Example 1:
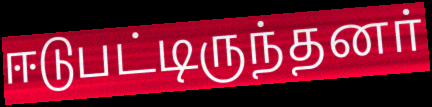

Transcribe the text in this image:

ஈடுபட்டிருந்தனர்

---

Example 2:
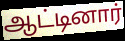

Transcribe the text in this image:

ஆட்டினார்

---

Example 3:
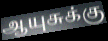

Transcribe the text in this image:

ஆயுசுக்கு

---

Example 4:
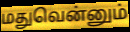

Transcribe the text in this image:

மதுவென்னும்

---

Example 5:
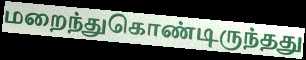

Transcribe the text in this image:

மறைந்துகொண்டிருந்தது